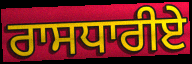
ਰਾਸਧਾਰੀਏ